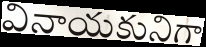
వినాయకునిగా